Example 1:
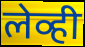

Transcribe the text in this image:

लेव्ही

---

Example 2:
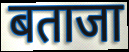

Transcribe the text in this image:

बताजा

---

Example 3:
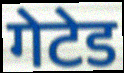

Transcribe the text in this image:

गेटेड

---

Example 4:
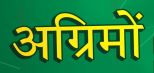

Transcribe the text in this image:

अग्रिमों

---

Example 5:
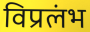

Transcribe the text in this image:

विप्रलंभ